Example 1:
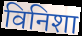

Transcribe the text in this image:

विनिशा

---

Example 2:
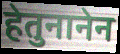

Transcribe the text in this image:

हेतुनानेन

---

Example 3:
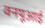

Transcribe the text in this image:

वनयूआई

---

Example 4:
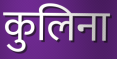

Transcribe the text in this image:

कुलिना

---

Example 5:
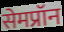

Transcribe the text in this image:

सेमप्रॉन